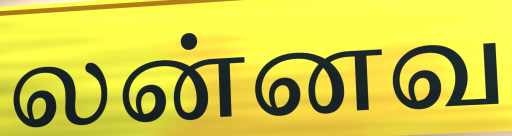
லன்னவ